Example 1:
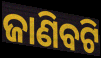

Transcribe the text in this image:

ଜାଣିବଟି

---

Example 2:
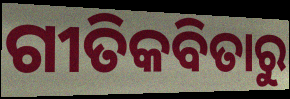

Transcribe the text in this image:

ଗୀତିକବିତାରୁ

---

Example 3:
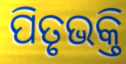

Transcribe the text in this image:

ପିତୃଭକ୍ତି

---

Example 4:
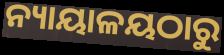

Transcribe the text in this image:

ନ୍ୟାୟାଳୟଠାରୁ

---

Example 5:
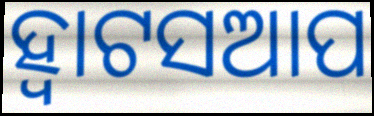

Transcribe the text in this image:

ହ୍ୱାଟସଆପ